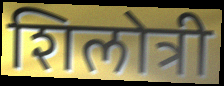
शिलोत्री